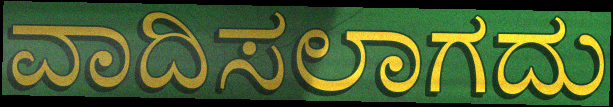
ವಾದಿಸಲಾಗದು